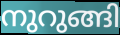
നുറുങ്ങി